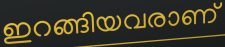
ഇറങ്ങിയവരാണ്